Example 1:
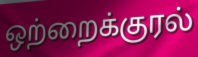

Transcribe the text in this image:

ஒற்றைக்குரல்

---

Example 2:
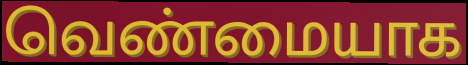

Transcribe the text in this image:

வெண்மையாக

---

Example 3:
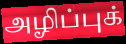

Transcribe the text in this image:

அழிப்புக்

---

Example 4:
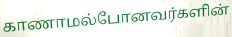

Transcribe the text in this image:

காணாமல்போனவர்களின்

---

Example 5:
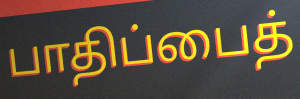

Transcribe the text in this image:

பாதிப்பைத்